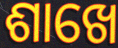
ଶାଖେ